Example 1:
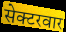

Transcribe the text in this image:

सेक्टरवार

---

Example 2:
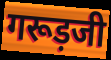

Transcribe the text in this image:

गरूड़जी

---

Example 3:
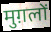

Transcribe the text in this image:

मुग़लों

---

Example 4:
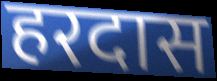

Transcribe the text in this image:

हरदास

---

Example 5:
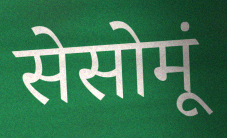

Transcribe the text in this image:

सेसोमूं